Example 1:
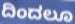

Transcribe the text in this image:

ದಿಂದಲೂ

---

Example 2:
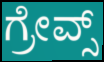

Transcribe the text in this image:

ಗ್ರೇವ್ಸ್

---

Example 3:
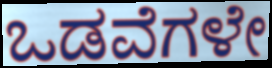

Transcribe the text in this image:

ಒಡವೆಗಳೇ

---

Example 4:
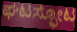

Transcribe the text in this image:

ಘಟಸ್ಫೋಟ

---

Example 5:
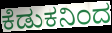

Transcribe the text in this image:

ಕೆಡುಕನಿಂದ